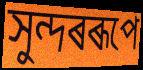
সুন্দৰৰূপে